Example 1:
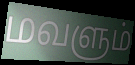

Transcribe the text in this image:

மவளும்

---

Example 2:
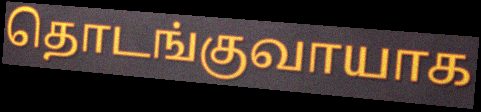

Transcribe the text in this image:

தொடங்குவாயாக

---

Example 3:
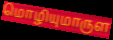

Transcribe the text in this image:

மொழியுமாருள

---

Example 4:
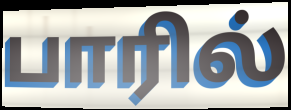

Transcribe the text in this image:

பாரில்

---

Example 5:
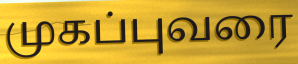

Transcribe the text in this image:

முகப்புவரை